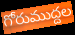
గోరుముద్దల